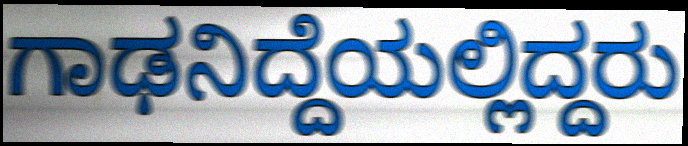
ಗಾಢನಿದ್ದೆಯಲ್ಲಿದ್ದರು